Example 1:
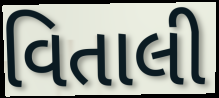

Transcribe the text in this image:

વિતાલી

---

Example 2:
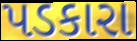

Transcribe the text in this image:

પડકારા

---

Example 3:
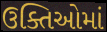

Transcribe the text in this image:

ઉક્તિઓમાં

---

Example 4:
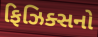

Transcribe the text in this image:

ફિઝિક્સનો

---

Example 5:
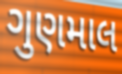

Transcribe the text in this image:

ગુણમાલ